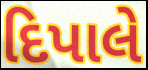
દિપાલે